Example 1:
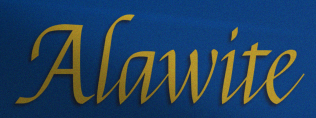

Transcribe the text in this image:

Alawite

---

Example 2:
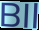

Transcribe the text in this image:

BIl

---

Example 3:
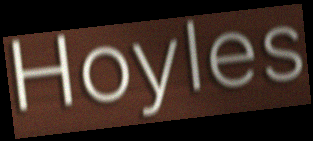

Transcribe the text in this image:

Hoyles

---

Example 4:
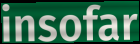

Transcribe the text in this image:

insofar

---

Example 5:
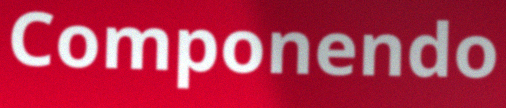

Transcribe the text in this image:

Componendo